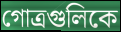
গোত্রগুলিকে